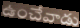
ఉంచేవాడు